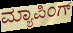
ಮ್ಯಾಪಿಂಗ್